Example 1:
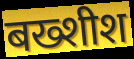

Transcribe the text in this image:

बख्शीश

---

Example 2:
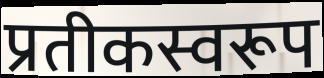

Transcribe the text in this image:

प्रतीकस्वरूप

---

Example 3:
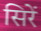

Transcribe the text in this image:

सिरें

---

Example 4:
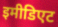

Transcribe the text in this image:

इमीडिएट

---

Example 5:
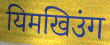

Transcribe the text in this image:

यिमखिउंग